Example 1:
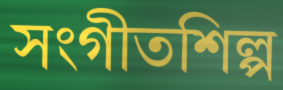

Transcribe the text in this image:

সংগীতশিল্প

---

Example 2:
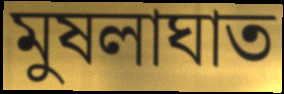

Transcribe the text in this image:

মুষলাঘাত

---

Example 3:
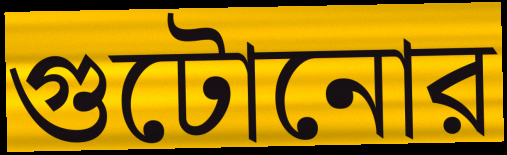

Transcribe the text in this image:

গুটোনোর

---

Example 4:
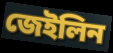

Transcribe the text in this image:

জেইলিন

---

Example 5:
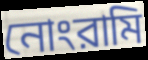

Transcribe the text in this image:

নোংরামি